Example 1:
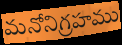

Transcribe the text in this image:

మనోనిగ్రహము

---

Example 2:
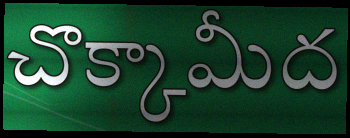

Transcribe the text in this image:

చొక్కామీద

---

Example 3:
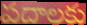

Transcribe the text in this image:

పదాలకు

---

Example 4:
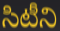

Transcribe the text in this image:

సిటీని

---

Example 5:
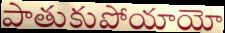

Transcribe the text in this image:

పాతుకుపోయాయో